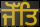
ਜੋੱਤਿ